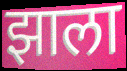
झाला